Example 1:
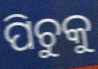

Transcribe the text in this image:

ପିଚୁକୁ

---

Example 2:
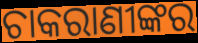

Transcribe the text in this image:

ଚାକରାଣୀଙ୍କର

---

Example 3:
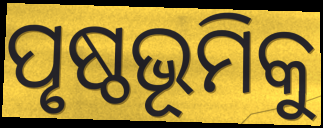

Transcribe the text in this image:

ପୃଷ୍ଠଭୂମିକୁ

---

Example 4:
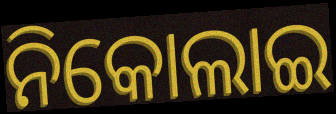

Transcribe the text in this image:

ନିକୋଲାଇ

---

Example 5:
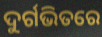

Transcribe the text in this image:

ଦୁର୍ଗଭିତରେ